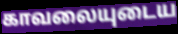
காவலையுடைய